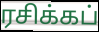
ரசிக்கப்